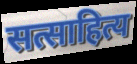
सत्साहित्य